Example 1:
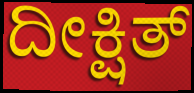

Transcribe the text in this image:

ದೀಕ್ಷಿತ್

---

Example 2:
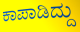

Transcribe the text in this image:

ಕಾಪಾಡಿದ್ದು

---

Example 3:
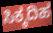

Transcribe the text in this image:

ಸಿಕ್ಕದಿಹ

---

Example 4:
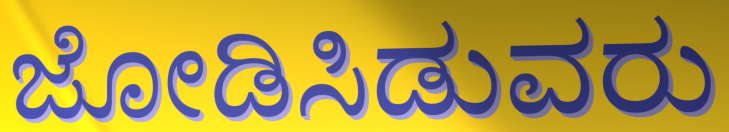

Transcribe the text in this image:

ಜೋಡಿಸಿಡುವರು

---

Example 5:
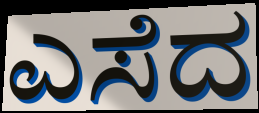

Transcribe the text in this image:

ಎಸೆದ